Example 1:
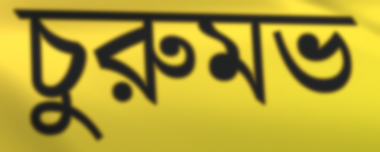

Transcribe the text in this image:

চুরুমভ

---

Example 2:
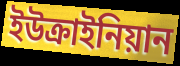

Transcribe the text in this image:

ইউক্রাইনিয়ান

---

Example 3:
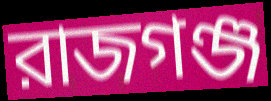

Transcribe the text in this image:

রাজগঞ্জ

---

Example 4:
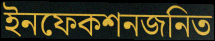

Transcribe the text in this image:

ইনফেকশনজনিত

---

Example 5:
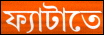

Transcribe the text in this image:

ফ্যাটাতে